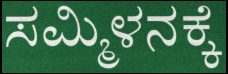
ಸಮ್ಮಿಳನಕ್ಕೆ